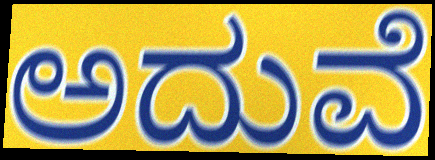
ಅದುವೆ